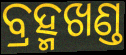
ବ୍ରହ୍ମଖଣ୍ଡ